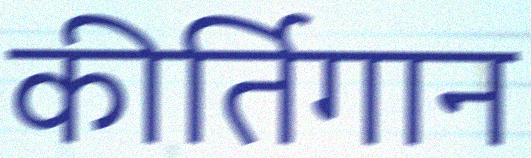
कीर्तिगान